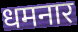
धमनार